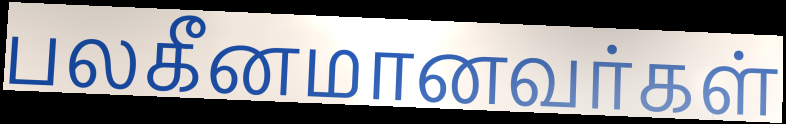
பலகீனமானவர்கள்